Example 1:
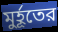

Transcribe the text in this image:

মুর্হূতের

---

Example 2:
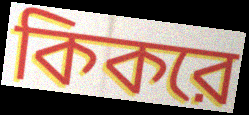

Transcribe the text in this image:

কিকরে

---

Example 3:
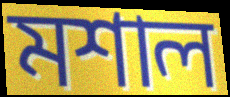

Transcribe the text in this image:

মশাল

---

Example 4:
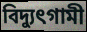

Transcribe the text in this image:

বিদ্যুৎগামী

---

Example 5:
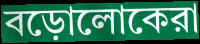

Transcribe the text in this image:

বড়োলোকেরা